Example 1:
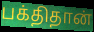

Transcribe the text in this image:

பக்திதான்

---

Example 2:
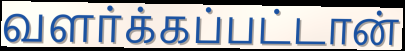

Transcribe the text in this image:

வளர்க்கப்பட்டான்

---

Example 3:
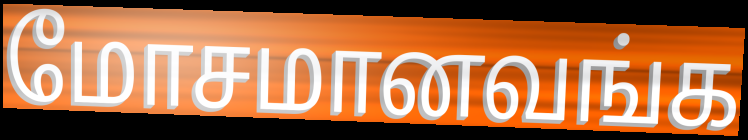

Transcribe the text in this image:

மோசமானவங்க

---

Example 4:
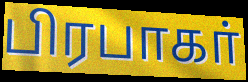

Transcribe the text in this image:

பிரபாகர்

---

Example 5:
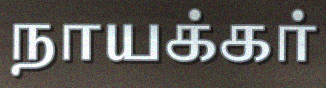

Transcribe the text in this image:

நாயக்கர்